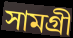
সামগ্রী